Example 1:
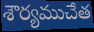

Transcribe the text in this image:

శౌర్యముచేత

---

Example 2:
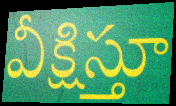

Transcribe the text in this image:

వీక్షిస్తూ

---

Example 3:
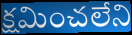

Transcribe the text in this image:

క్షమించలేని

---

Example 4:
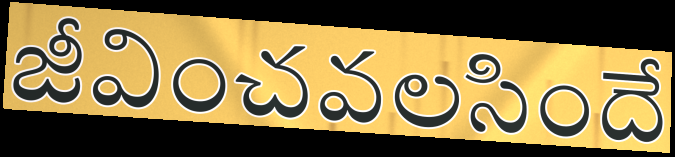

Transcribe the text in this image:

జీవించవలసిందే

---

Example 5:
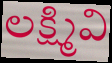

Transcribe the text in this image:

లక్ష్మివి